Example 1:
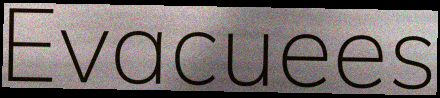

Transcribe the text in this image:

Evacuees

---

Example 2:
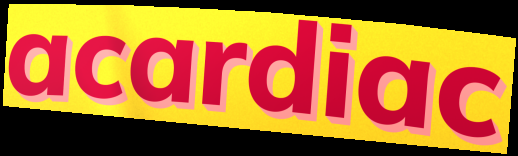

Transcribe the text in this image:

acardiac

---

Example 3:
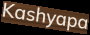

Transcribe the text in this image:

Kashyapa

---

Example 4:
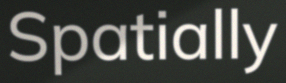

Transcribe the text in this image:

Spatially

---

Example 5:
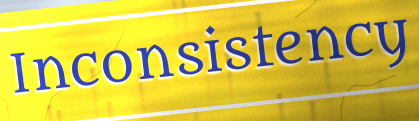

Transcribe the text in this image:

Inconsistency